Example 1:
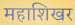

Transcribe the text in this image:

महाशिखर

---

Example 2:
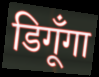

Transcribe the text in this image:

डिगूँगा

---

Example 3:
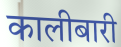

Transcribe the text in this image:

कालीबारी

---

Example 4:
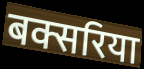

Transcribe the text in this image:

बक्सरिया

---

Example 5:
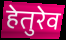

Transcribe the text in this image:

हेतुरेव